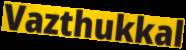
Vazthukkal